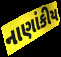
નાણાંકીય